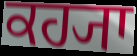
ਕਹ੍ਯਾ